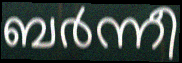
ബർന്നീ